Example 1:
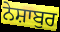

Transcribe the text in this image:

ਨੇਸ਼ਾਬੁਰ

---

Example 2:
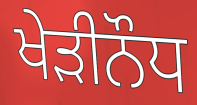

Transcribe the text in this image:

ਖੇੜੀਨੌਧ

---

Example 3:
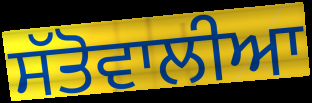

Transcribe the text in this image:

ਸੱਤੋਵਾਲੀਆ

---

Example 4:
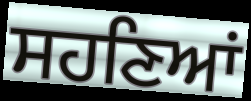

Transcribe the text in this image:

ਸਹਣਿਆਂ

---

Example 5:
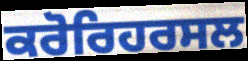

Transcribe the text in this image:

ਕਰੋਰਿਹਰਸਲ